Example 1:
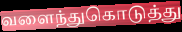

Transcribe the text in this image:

வளைந்துகொடுத்து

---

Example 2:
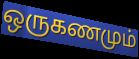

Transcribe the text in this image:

ஒருகணமும்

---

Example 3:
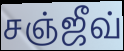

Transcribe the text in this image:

சஞ்ஜீவ்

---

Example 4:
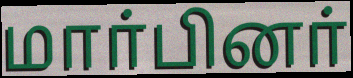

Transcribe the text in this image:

மார்பினர்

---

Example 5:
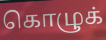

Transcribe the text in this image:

கொழுக்